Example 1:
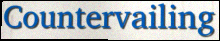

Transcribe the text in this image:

Countervailing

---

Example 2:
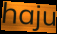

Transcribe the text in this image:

haju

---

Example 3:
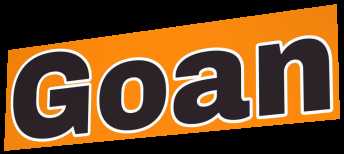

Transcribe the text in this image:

Goan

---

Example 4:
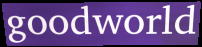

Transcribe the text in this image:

goodworld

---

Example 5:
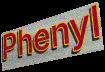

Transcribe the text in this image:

Phenyl